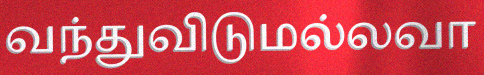
வந்துவிடுமல்லவா